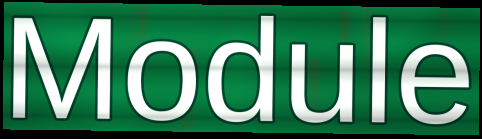
Module